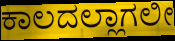
ಕಾಲದಲ್ಲಾಗಲೀ